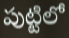
పుట్టిలో